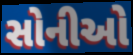
સોનીઓ